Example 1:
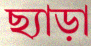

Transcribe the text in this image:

ছ্যাড়া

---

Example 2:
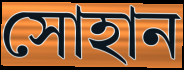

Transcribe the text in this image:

সোহান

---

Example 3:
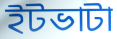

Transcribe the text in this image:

ইটভাটা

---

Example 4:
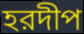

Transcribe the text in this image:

হরদীপ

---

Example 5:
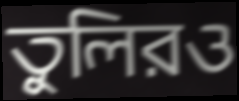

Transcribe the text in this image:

তুলিরও